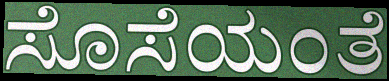
ಸೊಸೆಯಂತೆ